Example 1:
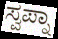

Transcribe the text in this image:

ಸ್ವಪ್ನಾ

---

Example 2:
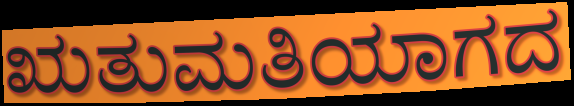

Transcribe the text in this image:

ಋತುಮತಿಯಾಗದ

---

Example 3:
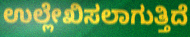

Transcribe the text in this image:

ಉಲ್ಲೇಖಿಸಲಾಗುತ್ತಿದೆ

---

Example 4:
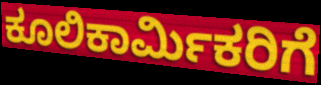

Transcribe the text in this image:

ಕೂಲಿಕಾರ್ಮಿಕರಿಗೆ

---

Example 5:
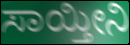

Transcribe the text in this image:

ಸಾಯ್ತೀನಿ